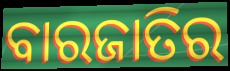
ବାରଜାତିର